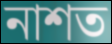
নাশত